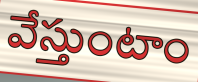
వేస్తుంటాం